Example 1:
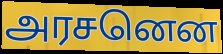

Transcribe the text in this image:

அரசனென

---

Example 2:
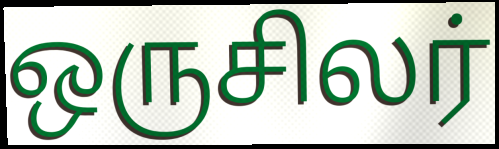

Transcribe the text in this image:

ஒருசிலர்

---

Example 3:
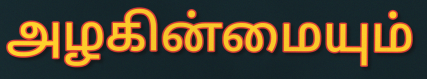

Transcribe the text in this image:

அழகின்மையும்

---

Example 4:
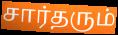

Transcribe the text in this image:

சார்தரும்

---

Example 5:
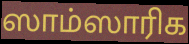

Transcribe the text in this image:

ஸாம்ஸாரிக